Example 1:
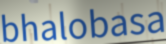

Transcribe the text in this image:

bhalobasa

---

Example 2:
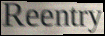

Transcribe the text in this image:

Reentry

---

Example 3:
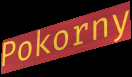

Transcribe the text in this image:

Pokorny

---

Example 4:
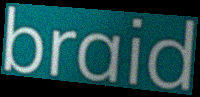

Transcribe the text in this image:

braid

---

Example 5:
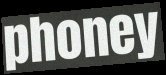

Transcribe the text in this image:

phoney